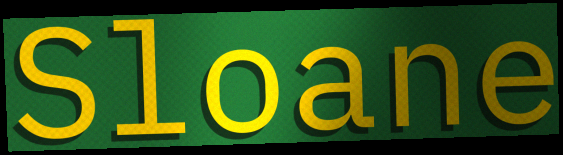
Sloane